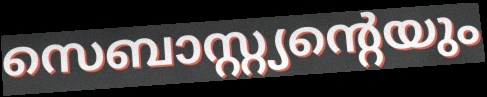
സെബാസ്റ്റ്യന്റെയും